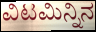
ವಿಟಮಿನ್ನಿನ